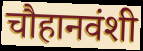
चौहानवंशी